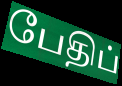
பேதிப்